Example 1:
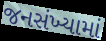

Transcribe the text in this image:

જનસંખ્યામાં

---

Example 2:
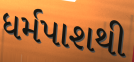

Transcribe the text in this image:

ધર્મપાશથી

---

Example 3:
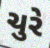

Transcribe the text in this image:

ચુરે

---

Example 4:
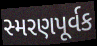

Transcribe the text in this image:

સ્મરણપૂર્વક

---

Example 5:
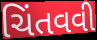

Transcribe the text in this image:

ચિંતવવી